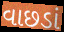
વાછડાં